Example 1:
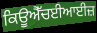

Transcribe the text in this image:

ਕਿਊਐੱਚਈਆਈਜ਼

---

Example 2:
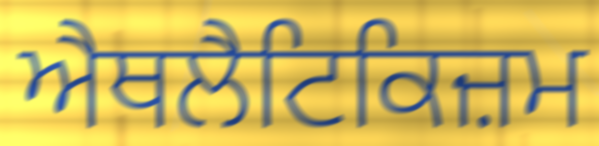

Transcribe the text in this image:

ਐਥਲੈਟਿਕਿਜ਼ਮ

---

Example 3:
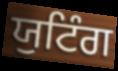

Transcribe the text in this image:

ਯੁਟਿੰਗ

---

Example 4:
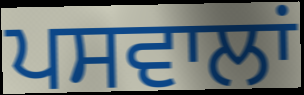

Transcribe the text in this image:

ਪਸਵਾਲਾਂ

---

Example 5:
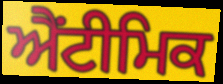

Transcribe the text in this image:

ਐਂਟੀਮਿਕ